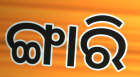
ଙ୍ଗାରି